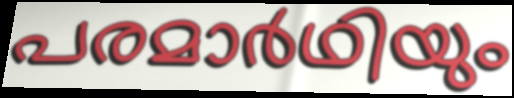
പരമാർഥിയും